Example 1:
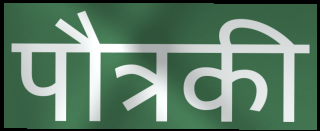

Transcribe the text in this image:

पौत्रकी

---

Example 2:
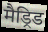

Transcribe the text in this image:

मैड्रिड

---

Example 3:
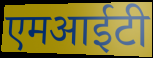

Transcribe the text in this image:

एमआईटी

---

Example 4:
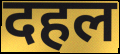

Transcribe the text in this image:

दहल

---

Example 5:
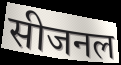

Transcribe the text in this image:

सीजनल